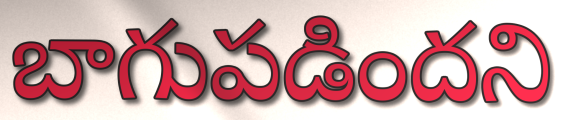
బాగుపడిందని